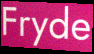
Fryde